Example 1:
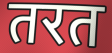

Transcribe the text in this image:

तरत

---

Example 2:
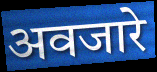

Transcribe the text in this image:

अवजारे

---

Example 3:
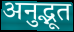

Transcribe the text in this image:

अनुद्भूत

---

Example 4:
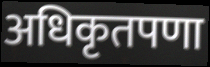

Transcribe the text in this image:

अधिकृतपणा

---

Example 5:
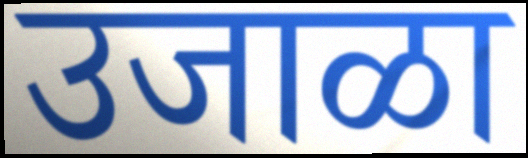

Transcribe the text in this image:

उजाळा